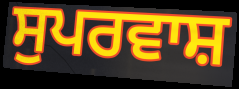
ਸੁਪਰਵਾਸ਼